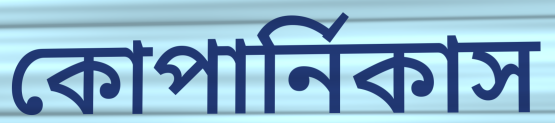
কোপার্নিকাস